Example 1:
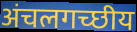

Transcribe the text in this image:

अंचलगच्छीय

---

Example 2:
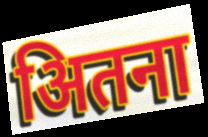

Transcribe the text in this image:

अितना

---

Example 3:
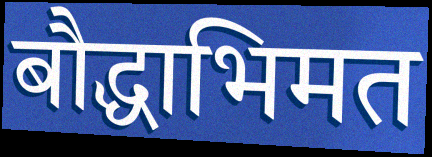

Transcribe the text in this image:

बौद्धाभिमत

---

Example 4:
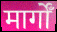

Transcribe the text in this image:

मार्गोँ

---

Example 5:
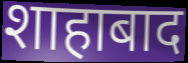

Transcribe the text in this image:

शाहाबाद